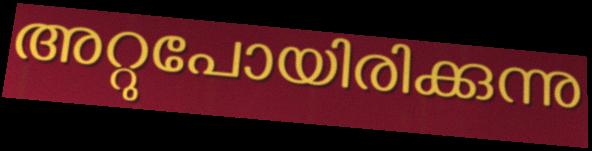
അറ്റുപോയിരിക്കുന്നു